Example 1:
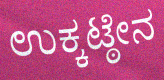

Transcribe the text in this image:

ಉಕ್ಕಟ್ಠೇನ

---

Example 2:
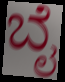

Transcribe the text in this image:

ಬೈ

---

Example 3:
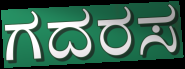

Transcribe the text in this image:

ಗದರಸ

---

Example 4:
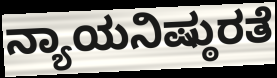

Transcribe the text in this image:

ನ್ಯಾಯನಿಷ್ಠುರತೆ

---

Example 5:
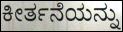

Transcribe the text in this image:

ಕೀರ್ತನೆಯನ್ನು